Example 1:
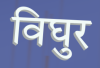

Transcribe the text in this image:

विघुर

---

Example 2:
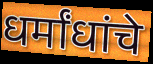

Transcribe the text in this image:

धर्मांधांचे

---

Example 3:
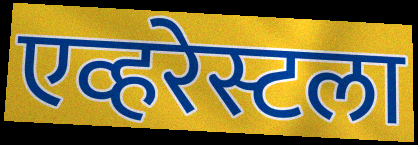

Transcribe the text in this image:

एव्हरेस्टला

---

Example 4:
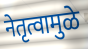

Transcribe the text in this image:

नेतृत्वामुळे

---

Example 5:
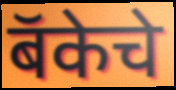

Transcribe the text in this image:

बॅकेचे